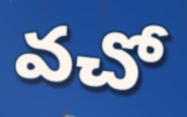
వచో